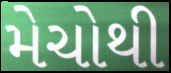
મેચોથી